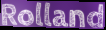
Rolland